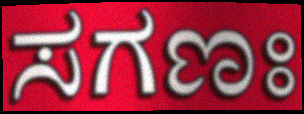
ಸಗಣಃ